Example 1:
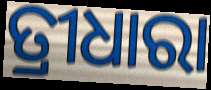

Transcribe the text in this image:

ତ୍ରୀଧାରା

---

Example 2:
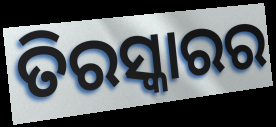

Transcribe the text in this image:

ତିରସ୍କାରର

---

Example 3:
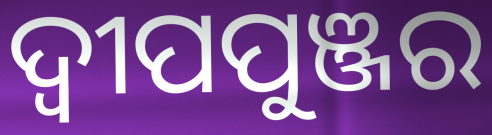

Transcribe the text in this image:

ଦ୍ଵୀପପୁଞ୍ଜର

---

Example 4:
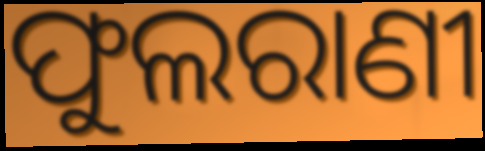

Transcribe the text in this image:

ଫୁଲରାଣୀ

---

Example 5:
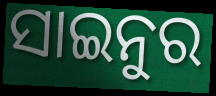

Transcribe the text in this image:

ସାଇନୁର